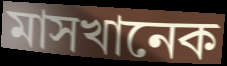
মাসখানেক